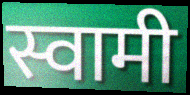
स्‍वामी